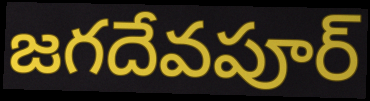
జగదేవపూర్